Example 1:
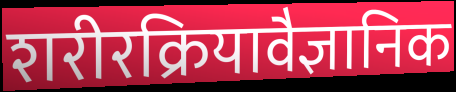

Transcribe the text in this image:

शरीरक्रियावैज्ञानिक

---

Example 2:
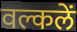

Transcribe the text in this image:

वल्कलें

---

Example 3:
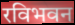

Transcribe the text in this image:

रविभवन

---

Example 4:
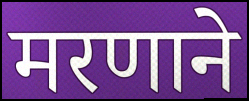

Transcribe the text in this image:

मरणाने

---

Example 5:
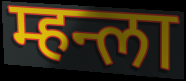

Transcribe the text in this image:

म्हन्ला